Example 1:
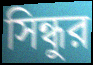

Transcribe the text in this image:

সিন্ধুর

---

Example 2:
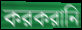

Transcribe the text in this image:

করকরানি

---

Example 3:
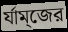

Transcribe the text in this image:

র্যাম্জের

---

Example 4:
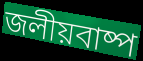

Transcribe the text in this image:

জলীয়বাষ্প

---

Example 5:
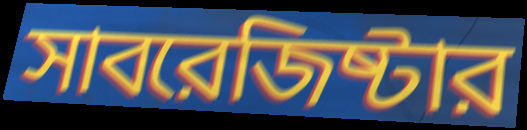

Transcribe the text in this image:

সাবরেজিষ্টার